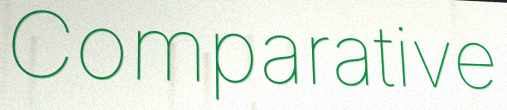
Comparative